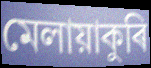
মেলায়াকুৰি